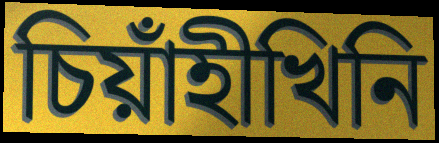
চিয়াঁহীখিনি